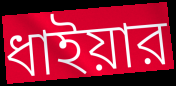
ধাইয়ার